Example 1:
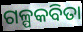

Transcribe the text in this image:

ଗଳ୍ପକବିତା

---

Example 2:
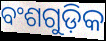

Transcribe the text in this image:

ବଂଶଗୁଡ଼ିକ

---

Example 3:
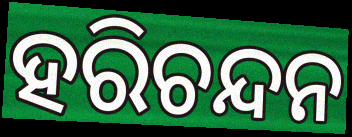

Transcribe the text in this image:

ହରିଚନ୍ଦନ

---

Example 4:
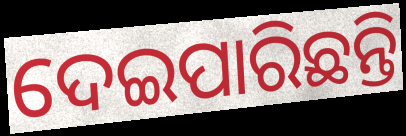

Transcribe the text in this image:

ଦେଇପାରିଛନ୍ତି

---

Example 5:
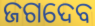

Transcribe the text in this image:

ଜଗଦେବ